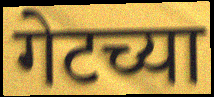
गेटच्या